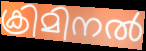
ക്രിമിനൽ